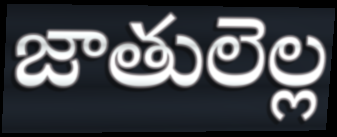
జాతులెల్ల